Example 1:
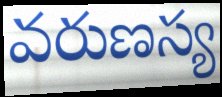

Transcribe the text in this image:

వరుణస్య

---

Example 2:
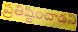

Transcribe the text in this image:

ప్రతిష్టించాడని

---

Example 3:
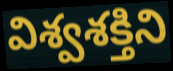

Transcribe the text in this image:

విశ్వశక్తిని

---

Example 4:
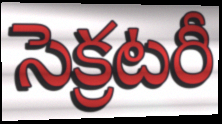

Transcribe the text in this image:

సెక్రటరీ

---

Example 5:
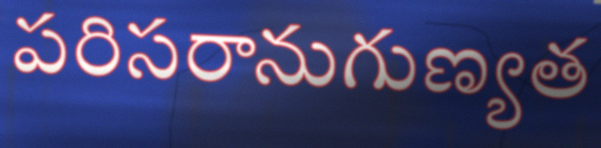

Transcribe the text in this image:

పరిసరానుగుణ్యత